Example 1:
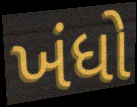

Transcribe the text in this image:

ખંધો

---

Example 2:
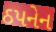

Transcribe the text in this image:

ઠપનેન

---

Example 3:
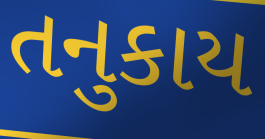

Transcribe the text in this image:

તનુકાય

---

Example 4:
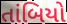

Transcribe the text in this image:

તાંબિયો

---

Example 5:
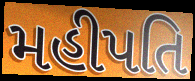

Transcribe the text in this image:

મહીપતિ